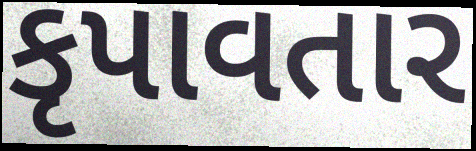
કૃપાવતાર